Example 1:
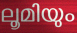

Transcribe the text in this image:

ലൂമിയും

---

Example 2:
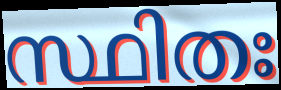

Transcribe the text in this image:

സ്ഥിതഃ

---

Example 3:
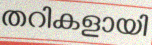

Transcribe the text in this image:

തറികളായി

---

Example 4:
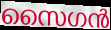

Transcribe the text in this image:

സൈഗൻ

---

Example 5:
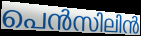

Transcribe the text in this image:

പെൻസിലിൻ